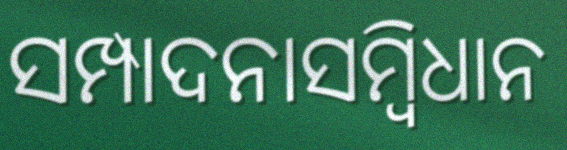
ସମ୍ପାଦନାସମ୍ବିଧାନ